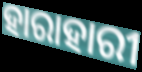
ହାରାହାରୀ